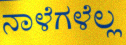
ನಾಳೆಗಳೆಲ್ಲ